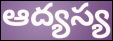
ఆద్యస్య